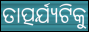
ତାତ୍ପର୍ଯ୍ୟଟିକୁ